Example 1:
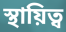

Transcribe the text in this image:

স্থায়িত্ব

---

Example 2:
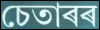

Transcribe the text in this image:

চেতাৰৰ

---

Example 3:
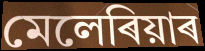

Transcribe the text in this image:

মেলেৰিয়াৰ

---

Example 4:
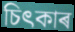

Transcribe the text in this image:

চিৎকাৰ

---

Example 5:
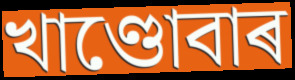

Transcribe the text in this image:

খাণ্ডোবাৰ